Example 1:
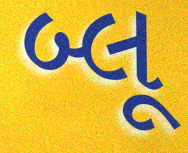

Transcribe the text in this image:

બ્લૂ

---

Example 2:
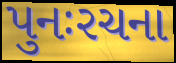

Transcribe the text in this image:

પુનઃરચના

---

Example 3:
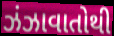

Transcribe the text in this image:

ઝંઝાવાતોથી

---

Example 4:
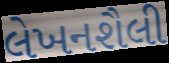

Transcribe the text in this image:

લેખનશૈલી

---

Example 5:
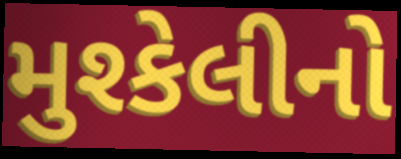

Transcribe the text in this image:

મુશ્કેલીનો